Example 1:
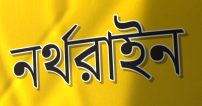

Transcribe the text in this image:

নর্থরাইন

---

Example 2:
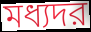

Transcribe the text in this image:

মধ্যদর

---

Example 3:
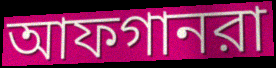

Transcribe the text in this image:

আফগানরা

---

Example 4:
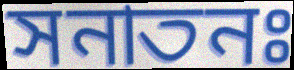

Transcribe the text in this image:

সনাতনঃ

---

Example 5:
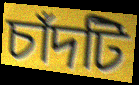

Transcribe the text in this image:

চাঁদটি